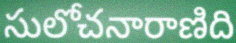
సులోచనారాణిది